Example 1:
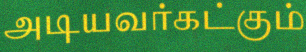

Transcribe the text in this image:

அடியவர்கட்கும்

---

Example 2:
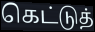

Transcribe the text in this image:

கெட்டுத்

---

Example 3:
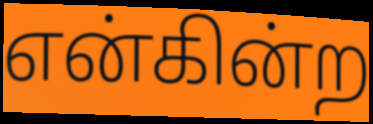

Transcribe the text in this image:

என்கின்ற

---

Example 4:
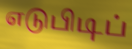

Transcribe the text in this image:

எடுபிடிப்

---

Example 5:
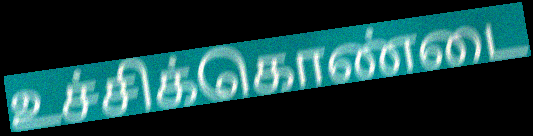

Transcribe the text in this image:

உச்சிக்கொண்டை